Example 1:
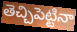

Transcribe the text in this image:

తెచ్చిపెట్టినా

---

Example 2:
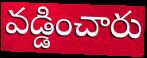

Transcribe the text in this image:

వడ్డించారు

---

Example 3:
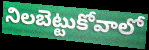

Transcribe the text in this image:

నిలబెట్టుకోవాలో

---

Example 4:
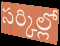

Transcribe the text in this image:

సర్కిల్లో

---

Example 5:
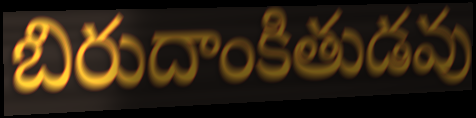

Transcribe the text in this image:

బిరుదాంకితుడవు